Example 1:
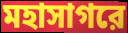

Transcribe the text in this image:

মহাসাগরে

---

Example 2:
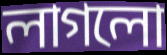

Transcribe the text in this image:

লাগলো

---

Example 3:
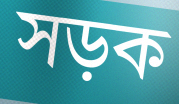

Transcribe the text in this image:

সড়ক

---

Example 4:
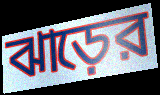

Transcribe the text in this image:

ঝাড়ের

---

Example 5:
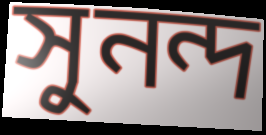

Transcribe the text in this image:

সুনন্দ